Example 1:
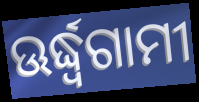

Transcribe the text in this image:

ଊର୍ଦ୍ଧ୍ୱଗାମୀ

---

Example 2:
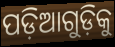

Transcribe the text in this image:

ପଡ଼ିଆଗୁଡ଼ିକୁ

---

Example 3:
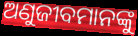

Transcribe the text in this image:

ଅଣୁଜୀବମାନଙ୍କୁ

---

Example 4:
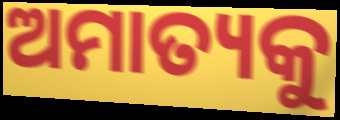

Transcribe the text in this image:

ଅମାତ୍ୟକୁ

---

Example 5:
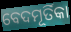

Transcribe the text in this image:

ବେଦମୂର୍ତିକା